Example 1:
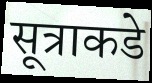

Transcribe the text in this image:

सूत्राकडे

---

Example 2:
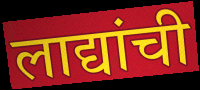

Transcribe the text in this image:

लाद्यांची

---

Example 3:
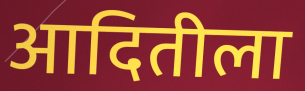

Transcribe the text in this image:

आदितीला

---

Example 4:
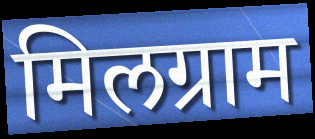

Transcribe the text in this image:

मिलग्राम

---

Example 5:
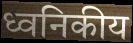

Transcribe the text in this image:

ध्वनिकीय